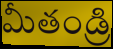
మీతండ్రి